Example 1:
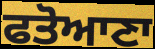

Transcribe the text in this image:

ਫਤੋਆਣਾ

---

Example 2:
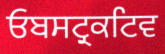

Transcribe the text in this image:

ਓਬਸਟ੍ਰਕਟਿਵ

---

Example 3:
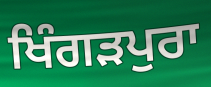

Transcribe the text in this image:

ਖਿੰਗੜਪੁਰਾ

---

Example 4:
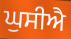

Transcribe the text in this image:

ਘੁਸੀਐ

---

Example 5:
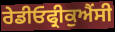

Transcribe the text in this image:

ਰੇਡੀਓਫ੍ਰੀਕੁਐਂਸੀ